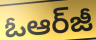
ఓఆర్‌జీ